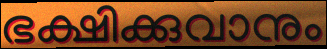
ഭക്ഷിക്കുവാനും